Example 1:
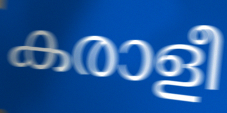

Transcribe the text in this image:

കരാളീ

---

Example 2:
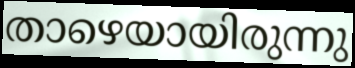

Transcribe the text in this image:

താഴെയായിരുന്നു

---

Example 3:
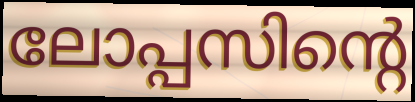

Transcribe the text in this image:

ലോപ്പസിന്റെ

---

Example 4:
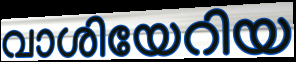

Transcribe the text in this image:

വാശിയേറിയ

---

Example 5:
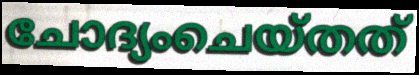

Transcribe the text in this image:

ചോദ്യംചെയ്തത്